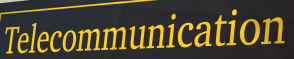
Telecommunication